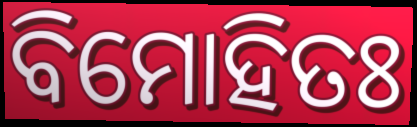
ବିମୋହିତଃ